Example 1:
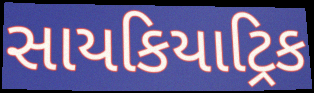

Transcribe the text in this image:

સાયકિયાટ્રિક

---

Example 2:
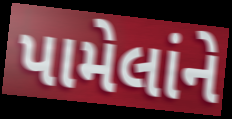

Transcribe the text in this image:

પામેલાંને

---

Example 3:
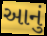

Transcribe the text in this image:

આનું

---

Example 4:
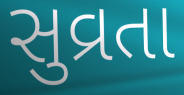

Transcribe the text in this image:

સુવ્રતા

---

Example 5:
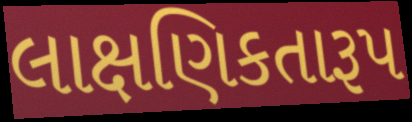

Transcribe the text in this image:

લાક્ષણિકતારૂપ